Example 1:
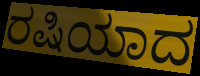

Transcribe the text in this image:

ರಷಿಯಾದ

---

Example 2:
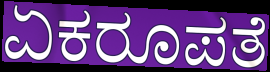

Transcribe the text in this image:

ಏಕರೂಪತೆ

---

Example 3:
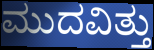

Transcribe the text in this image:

ಮುದವಿತ್ತು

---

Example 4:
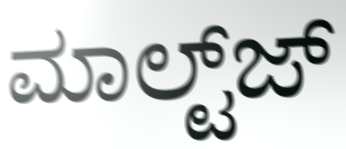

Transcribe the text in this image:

ಮಾಲ್ಟ್‌ಜ್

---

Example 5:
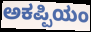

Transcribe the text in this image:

ಅಕಪ್ಪಿಯಂ